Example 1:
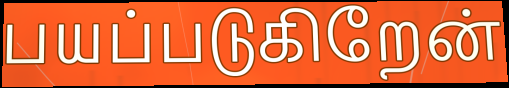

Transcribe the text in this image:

பயப்படுகிறேன்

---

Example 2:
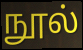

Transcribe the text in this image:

நூல்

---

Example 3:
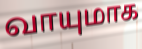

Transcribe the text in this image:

வாயுமாக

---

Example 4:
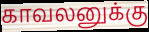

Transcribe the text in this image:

காவலனுக்கு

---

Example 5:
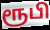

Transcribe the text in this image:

ரூபி